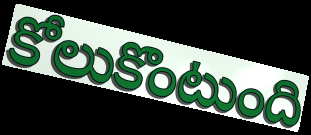
కోలుకొంటుంది